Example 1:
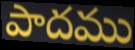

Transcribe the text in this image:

పాదము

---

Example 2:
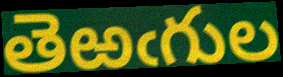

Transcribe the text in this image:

తెఱఁగుల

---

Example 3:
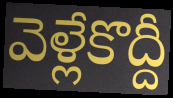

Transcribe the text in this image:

వెళ్లేకొద్దీ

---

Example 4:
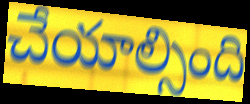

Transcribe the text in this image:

చేయాల్సింది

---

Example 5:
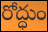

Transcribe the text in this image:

రోద్ధుం